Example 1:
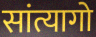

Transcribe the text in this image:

सांत्यागो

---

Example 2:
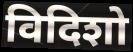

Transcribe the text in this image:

विदिशो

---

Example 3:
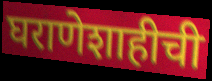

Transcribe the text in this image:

घराणेशाहीची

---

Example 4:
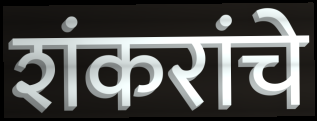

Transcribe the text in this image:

शंकरांचे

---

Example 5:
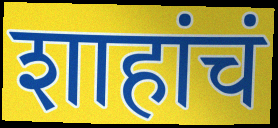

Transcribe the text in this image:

शाहांचं